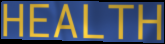
HEALTH